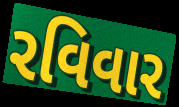
રવિવાર